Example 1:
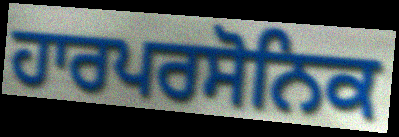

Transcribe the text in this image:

ਹਾਰਪਰਸੋਨਿਕ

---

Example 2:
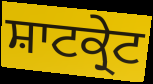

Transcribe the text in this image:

ਸ਼ਾਟਕ੍ਰੇਟ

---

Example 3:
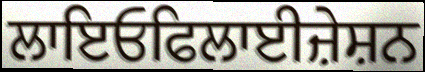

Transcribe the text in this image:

ਲਾਇਓਫਿਲਾਈਜ਼ੇਸ਼ਨ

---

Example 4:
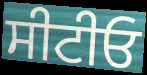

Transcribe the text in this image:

ਸੀਟੀਓ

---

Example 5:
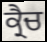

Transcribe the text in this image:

ਕ੍ਰੈਚ